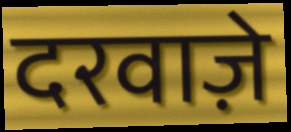
दरवाज़े